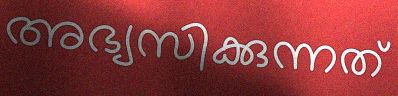
അഭ്യസിക്കുന്നത്